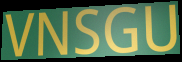
VNSGU